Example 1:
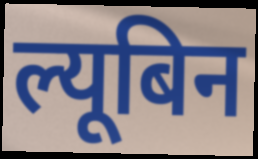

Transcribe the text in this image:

ल्यूबिन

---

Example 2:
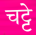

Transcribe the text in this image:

चट्टे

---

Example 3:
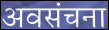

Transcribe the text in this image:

अवसंचना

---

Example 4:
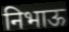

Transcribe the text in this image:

निभाऊ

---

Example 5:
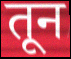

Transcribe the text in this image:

तून